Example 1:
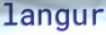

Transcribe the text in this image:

langur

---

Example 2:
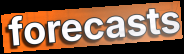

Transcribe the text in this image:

forecasts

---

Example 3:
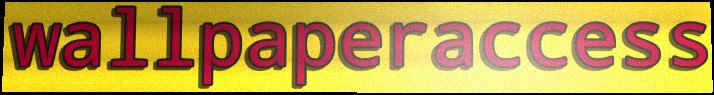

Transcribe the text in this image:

wallpaperaccess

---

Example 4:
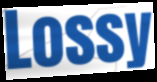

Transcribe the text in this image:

Lossy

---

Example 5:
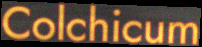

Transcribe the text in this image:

Colchicum